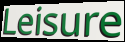
Leisure